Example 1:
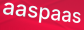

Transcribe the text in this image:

aaspaas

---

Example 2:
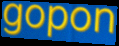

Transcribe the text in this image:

gopon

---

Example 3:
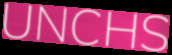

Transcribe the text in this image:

UNCHS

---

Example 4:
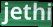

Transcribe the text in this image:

jethi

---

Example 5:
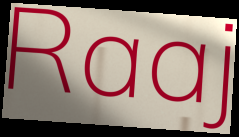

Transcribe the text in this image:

Raaj